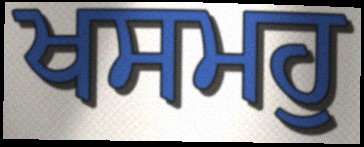
ਖਸਮਹੁ